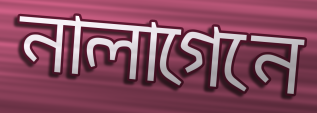
নালাগেনে